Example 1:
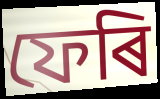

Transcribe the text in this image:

ফেৰি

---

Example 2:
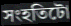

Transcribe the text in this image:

সংহতিটো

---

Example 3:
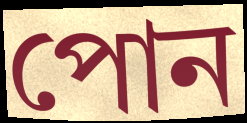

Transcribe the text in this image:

পোন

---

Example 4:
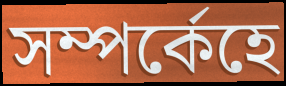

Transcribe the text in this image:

সম্পৰ্কেহে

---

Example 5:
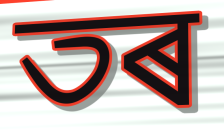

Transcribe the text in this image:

তৰ